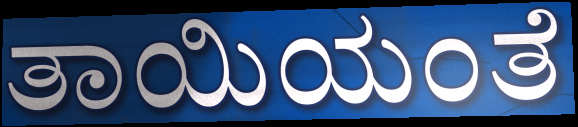
ತಾಯಿಯಂತೆ